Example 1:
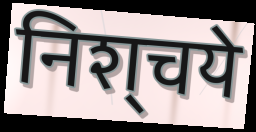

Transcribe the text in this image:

निश्चये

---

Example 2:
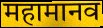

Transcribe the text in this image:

महामानव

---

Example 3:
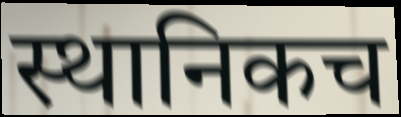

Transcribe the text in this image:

स्थानिकच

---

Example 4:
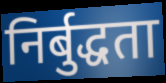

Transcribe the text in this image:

निर्बुद्धता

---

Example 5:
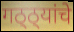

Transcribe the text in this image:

गठ्ठ्यांचे